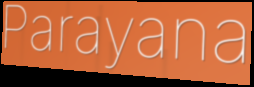
Parayana